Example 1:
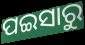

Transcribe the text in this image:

ପଇସାରୁ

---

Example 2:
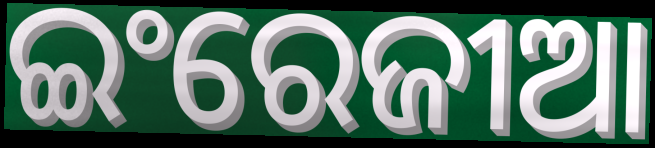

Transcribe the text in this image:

ଇଂରେଜୀଆ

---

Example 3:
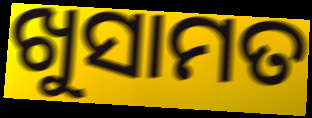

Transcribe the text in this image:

ଖୁସାମତ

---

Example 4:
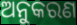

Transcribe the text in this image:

ଅନୁକରଣ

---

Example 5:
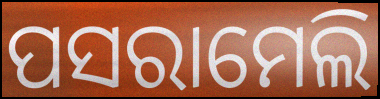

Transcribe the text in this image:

ପସରାମେଲି